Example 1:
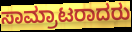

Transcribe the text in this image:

ಸಾಮ್ರಾಟರಾದರು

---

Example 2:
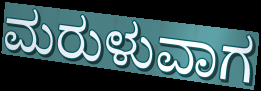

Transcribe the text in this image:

ಮರುಳುವಾಗ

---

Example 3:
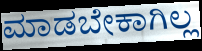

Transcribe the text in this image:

ಮಾಡಬೇಕಾಗಿಲ್ಲ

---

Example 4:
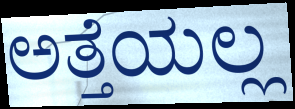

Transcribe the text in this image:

ಅತ್ತೆಯಲ್ಲ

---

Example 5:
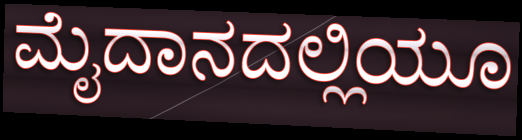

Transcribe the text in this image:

ಮೈದಾನದಲ್ಲಿಯೂ